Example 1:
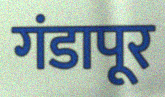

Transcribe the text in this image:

गंडापूर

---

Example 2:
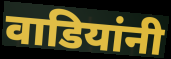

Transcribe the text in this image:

वाडियांनी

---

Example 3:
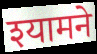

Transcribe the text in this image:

श्यामने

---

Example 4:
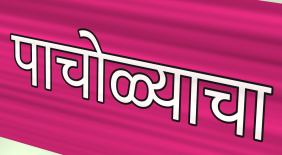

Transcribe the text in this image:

पाचोळ्याचा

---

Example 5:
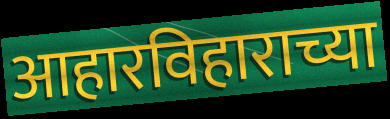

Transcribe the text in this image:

आहारविहाराच्या